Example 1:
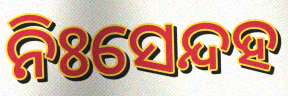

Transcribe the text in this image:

ନିଃସେନ୍ଦହ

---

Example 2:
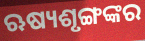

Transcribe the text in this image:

ଋଷ୍ୟଶୃଙ୍ଗଙ୍କର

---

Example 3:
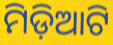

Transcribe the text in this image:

ମିଡ଼ିଆଟି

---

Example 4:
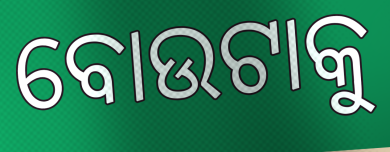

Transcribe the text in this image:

ବୋଉଟାକୁ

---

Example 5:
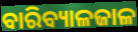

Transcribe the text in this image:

ବାରିବ୍ୟାଳଜାଳ